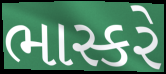
ભાસ્કરે